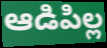
ఆడిపిల్ల